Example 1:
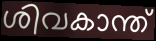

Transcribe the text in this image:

ശിവകാന്ത്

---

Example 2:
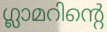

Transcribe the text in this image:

ഗ്ലാമറിന്റെ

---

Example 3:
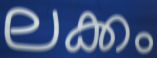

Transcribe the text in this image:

ലക്കം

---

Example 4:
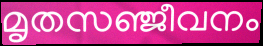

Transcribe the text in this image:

മൃതസഞ്ജീവനം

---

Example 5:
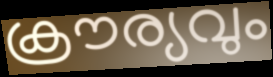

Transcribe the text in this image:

ക്രൗര്യവും